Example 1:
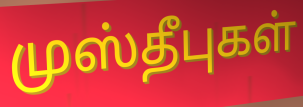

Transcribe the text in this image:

முஸ்தீபுகள்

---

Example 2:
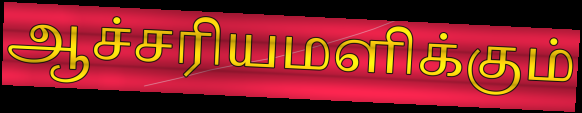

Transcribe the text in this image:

ஆச்சரியமளிக்கும்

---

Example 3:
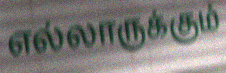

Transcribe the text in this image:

எல்லாருக்கும்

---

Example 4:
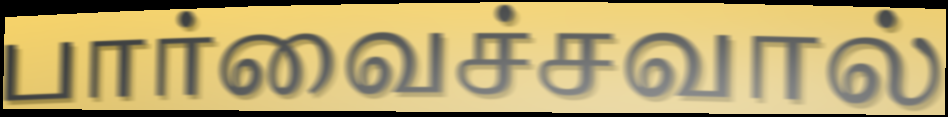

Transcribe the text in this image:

பார்வைச்சவால்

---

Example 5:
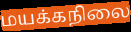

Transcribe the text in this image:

மயக்கநிலை